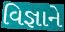
વિજ્ઞાને